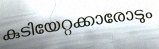
കുടിയേറ്റക്കാരോടും